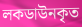
লকডাউনকৃত